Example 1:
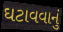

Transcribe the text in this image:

ઘટાવવાનું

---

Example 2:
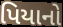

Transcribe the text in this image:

પિયાનો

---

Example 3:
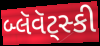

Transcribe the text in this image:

બ્લૅવૅટ્સ્કી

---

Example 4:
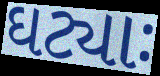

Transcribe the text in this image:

ઘટ્યાઃ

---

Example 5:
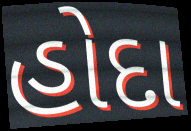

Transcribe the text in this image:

હોદા